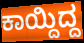
ಕಾಯ್ದಿದ್ದ